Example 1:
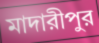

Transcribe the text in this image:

মাদারীপুর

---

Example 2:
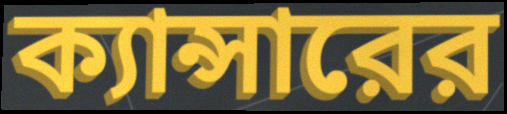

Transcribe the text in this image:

ক্যান্সারের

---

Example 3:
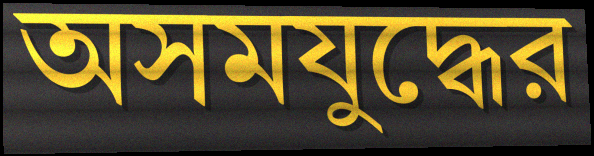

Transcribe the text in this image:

অসমযুদ্ধের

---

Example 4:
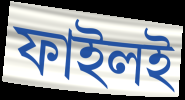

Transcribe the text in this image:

ফাইলই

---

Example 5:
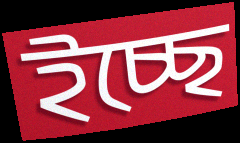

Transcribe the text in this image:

ইচ্ছে